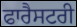
ਫਾਰੈਸਟਰੀ